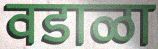
वडाळा